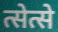
त्सेत्से